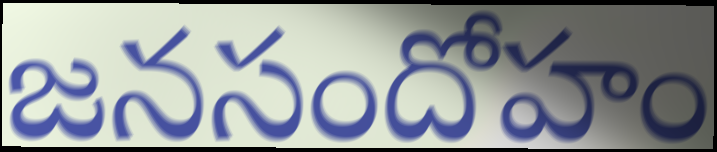
జనసందోహం